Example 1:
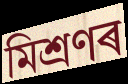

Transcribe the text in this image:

মিশ্ৰণৰ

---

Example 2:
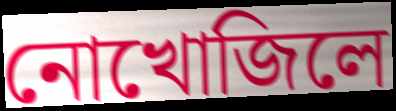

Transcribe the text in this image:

নোখোজিলে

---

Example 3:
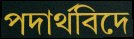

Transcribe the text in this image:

পদাৰ্থবিদে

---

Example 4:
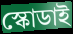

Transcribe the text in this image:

স্কোডাই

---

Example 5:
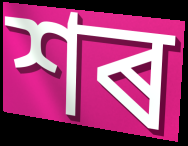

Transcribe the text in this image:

শৰ